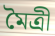
মৈত্ৰী